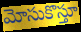
మోసుకొస్తూ